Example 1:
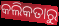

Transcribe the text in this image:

କଲିକତାରୁ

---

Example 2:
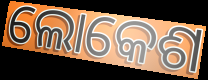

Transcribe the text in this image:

ଲୋକେଶ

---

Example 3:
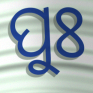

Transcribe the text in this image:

ପୁଃ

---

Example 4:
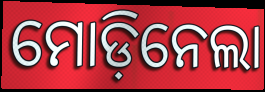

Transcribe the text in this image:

ମୋଡ଼ିନେଲା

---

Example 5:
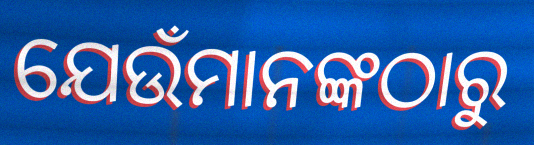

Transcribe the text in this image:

ଯେଉଁମାନଙ୍କଠାରୁ